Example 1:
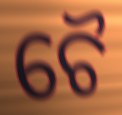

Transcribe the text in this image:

ଚୈ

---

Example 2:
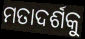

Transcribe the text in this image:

ମତାଦର୍ଶକୁ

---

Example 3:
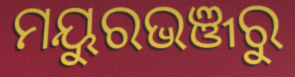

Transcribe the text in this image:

ମୟୁରଭଞ୍ଜରୁ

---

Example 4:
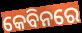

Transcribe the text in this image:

କେବିନରେ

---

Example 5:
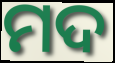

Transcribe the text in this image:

ମଦ